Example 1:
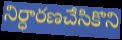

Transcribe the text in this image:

నిర్ధారణచేసికొని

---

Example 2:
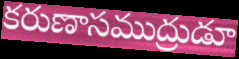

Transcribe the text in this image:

కరుణాసముద్రుడూ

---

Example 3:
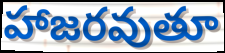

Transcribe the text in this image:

హాజరవుతూ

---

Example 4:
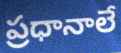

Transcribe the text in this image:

ప్రధానాలే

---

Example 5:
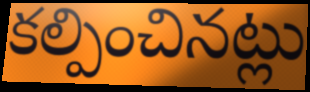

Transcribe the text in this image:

కల్పించినట్లు